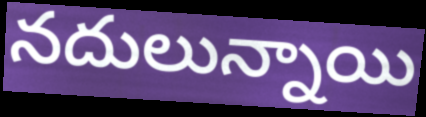
నదులున్నాయి